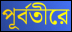
পূর্বতীরে